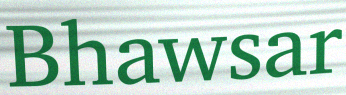
Bhawsar